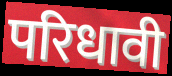
परिधावी